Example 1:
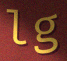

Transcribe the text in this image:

lg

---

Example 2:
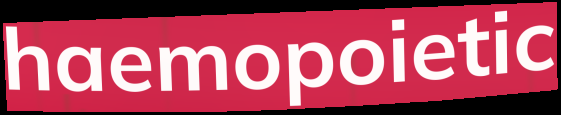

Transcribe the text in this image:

haemopoietic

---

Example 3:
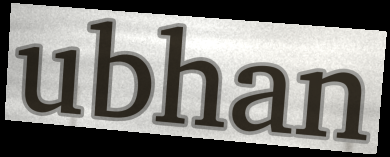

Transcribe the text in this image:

ubhan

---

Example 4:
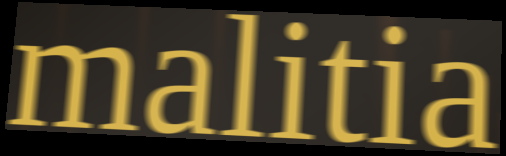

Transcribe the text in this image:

malitia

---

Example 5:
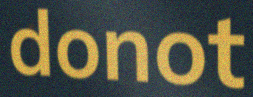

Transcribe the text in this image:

donot